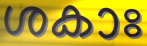
ശകാഃ